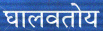
घालवतोय